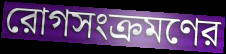
রোগসংক্রমণের